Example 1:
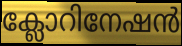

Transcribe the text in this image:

ക്ലോറിനേഷൻ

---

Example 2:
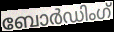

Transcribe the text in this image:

ബോർഡിംഗ്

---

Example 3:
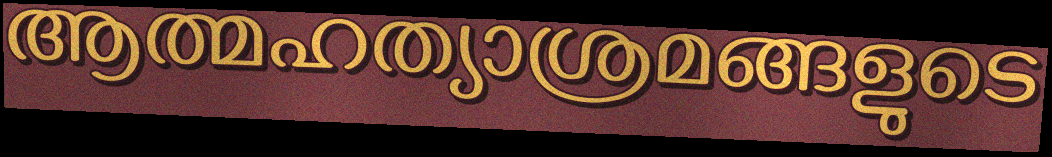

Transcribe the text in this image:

ആത്മഹത്യാശ്രമങ്ങളുടെ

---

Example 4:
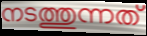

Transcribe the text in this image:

നടത്തുന്നത്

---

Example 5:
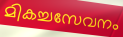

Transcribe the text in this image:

മികച്ചസേവനം